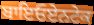
ਬਾਇਓਏਨਟੇਕ